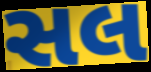
સલ